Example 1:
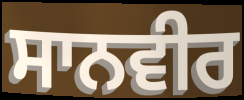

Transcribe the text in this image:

ਸਾਨਵੀਰ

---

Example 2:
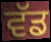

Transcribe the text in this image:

ਵੱਡ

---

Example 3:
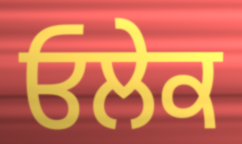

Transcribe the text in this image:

ਓਲੇਕ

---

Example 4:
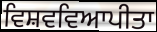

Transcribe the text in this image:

ਵਿਸ਼ਵਵਿਆਪੀਤਾ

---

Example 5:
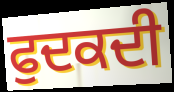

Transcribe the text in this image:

ਫੁਦਕਦੀ